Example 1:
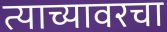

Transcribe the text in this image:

त्याच्यावरचा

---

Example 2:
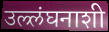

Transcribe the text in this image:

उल्लंघनाशी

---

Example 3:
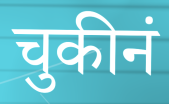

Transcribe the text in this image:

चुकीनं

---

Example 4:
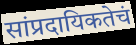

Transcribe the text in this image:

सांप्रदायिकतेचं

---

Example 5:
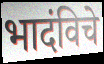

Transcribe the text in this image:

भादंविचे